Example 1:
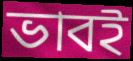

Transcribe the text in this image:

ভাবই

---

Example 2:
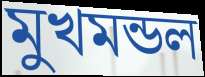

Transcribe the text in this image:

মুখমন্ডল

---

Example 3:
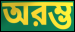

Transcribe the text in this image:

অরম্ভ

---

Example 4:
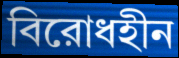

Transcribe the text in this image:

বিরোধহীন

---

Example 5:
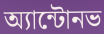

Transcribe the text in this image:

অ্যান্টোনভ